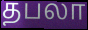
தபலா